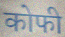
कोफी